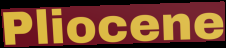
Pliocene